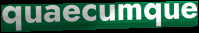
quaecumque